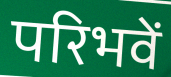
परिभवें